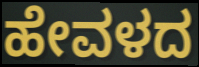
ಹೇವಳದ